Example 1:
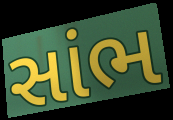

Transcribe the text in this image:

સાંભ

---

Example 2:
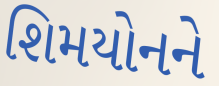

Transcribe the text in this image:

શિમયોનને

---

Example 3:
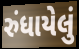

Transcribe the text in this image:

રુંધાયેલું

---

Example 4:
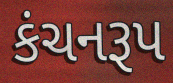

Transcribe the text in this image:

કંચનરૂપ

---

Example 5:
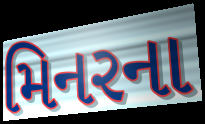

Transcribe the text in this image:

મિનરના